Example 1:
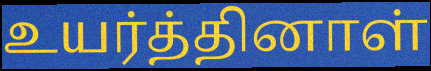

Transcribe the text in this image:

உயர்த்தினாள்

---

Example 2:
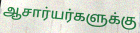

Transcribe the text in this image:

ஆசார்யர்களுக்கு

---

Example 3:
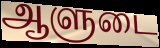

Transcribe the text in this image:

ஆளுடை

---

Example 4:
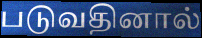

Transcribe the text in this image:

படுவதினால்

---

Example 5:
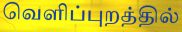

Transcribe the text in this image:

வெளிப்புறத்தில்